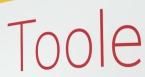
Toole